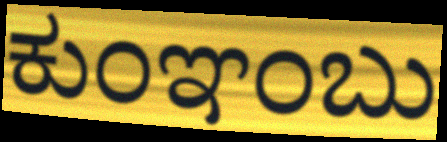
ಕುಂಞಂಬು